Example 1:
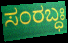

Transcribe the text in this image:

ಸಂರಬ್ಧಃ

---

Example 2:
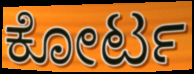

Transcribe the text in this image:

ಕೋರ್ಟ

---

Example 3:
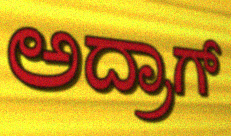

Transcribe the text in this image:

ಅದ್ರಾಗ್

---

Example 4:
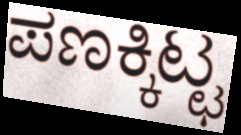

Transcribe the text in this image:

ಪಣಕ್ಕಿಟ್ಟ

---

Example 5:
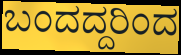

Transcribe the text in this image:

ಬಂದದ್ದರಿಂದ